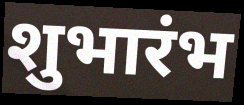
शुभारंभ